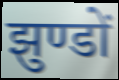
झुण्डों